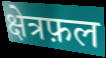
क्षेत्रफ़ल